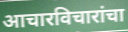
आचारविचारांचा